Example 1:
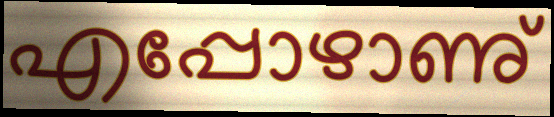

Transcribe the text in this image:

എപ്പോഴാണു്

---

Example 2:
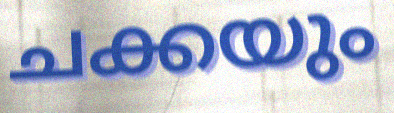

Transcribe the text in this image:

ചക്കയും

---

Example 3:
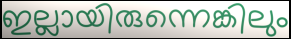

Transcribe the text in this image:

ഇല്ലായിരുന്നെങ്കിലും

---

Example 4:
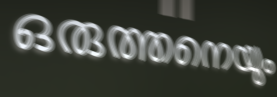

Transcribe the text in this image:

ഒരുത്തനെയും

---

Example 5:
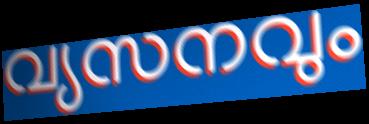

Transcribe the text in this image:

വ്യസനവും